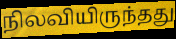
நிலவியிருந்தது